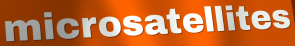
microsatellites